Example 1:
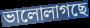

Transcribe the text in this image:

ভালোলাগছে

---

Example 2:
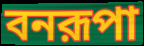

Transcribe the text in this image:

বনরূপা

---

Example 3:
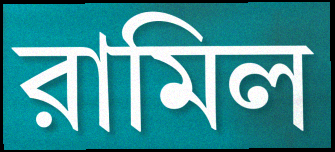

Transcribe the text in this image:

রামিল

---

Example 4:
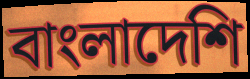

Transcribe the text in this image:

বাংলাদেশি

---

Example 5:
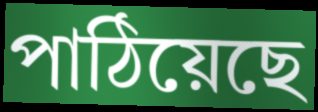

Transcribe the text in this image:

পাঠিয়েছে